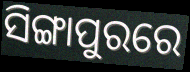
ସିଙ୍ଗାପୁରରେ